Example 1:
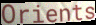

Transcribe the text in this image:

Orients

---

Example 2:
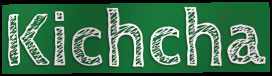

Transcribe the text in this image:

Kichcha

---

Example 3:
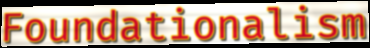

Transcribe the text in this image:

Foundationalism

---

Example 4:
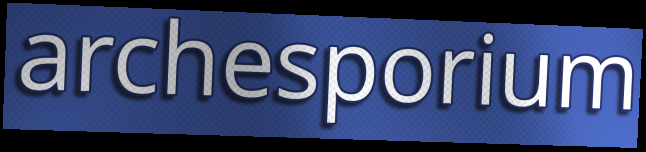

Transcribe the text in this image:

archesporium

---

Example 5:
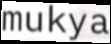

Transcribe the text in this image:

mukya